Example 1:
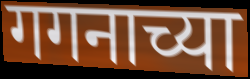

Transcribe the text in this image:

गगनाच्या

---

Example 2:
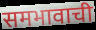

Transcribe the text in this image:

समभावाची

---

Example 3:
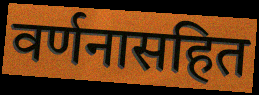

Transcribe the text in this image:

वर्णनासहित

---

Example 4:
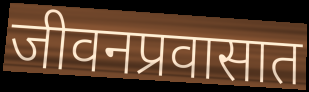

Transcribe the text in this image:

जीवनप्रवासात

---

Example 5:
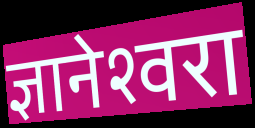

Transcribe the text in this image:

ज्ञानेश्वरा